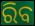
ରିବ